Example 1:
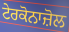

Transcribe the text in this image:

ਟੇਰਕੋਨਾਜ਼ੋਲ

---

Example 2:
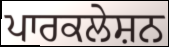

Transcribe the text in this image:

ਪਾਰਕਲੇਸ਼ਨ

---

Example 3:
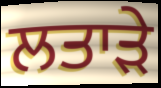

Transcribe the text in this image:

ਲਤਾਡ਼ੇ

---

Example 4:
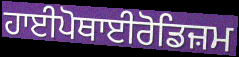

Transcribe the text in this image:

ਹਾਈਪੋਥਾਈਰੋਡਿਜ਼ਮ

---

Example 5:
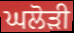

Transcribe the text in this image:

ਘਲੋਡ਼ੀ